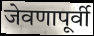
जेवणापूर्वी